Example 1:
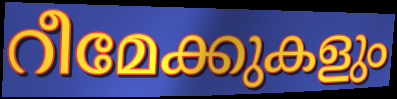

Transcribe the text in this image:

റീമേക്കുകളും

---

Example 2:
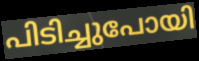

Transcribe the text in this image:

പിടിച്ചുപോയി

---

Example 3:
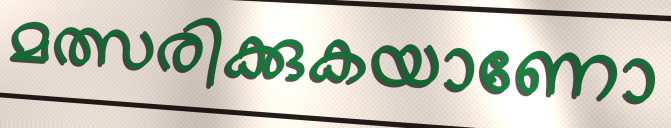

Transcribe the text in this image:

മത്സരിക്കുകയാണോ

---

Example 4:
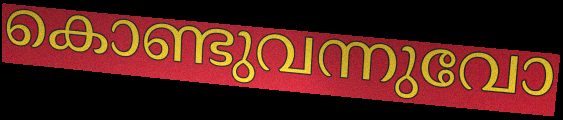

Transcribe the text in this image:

കൊണ്ടുവന്നുവോ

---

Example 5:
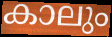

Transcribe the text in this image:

കാലും